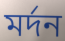
মর্দন